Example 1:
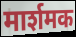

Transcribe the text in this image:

मार्शमक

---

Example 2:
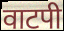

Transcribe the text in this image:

वाटपी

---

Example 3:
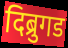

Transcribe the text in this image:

दिब्रुगड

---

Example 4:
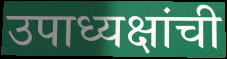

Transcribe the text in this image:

उपाध्यक्षांची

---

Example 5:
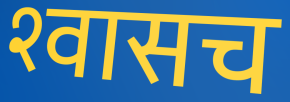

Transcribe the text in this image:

श्वासच